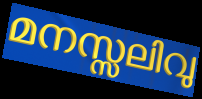
മനസ്സലിവു